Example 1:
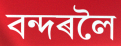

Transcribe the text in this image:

বন্দৰলৈ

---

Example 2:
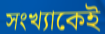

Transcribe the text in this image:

সংখ্যাকেই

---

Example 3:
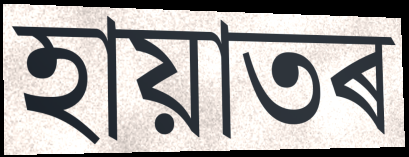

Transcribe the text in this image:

হায়াতৰ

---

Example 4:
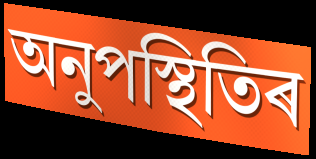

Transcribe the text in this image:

অনুপস্থিতিৰ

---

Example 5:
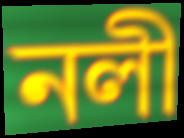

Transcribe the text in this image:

নলী